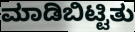
ಮಾಡಿಬಿಟ್ಟಿತು